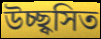
উচ্ছ্বসিত